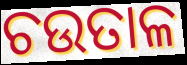
ଚଉତାଳ